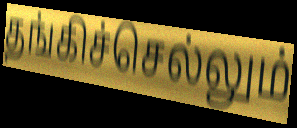
தங்கிச்செல்லும்